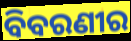
ବିବରଣୀର